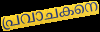
പ്രവാചകനെ